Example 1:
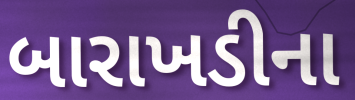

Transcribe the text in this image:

બારાખડીના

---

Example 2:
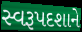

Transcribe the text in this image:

સ્વરૂપદશાને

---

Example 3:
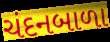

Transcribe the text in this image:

ચંદનબાળા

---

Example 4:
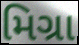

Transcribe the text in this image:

મિગ્રા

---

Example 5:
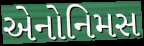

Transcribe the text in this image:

એનોનિમસ